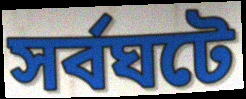
সর্বঘটে